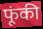
फूंकी